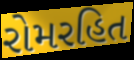
રોમરહિત